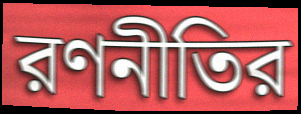
রণনীতির